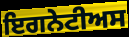
ਇਗਨੇਟੀਅਸ